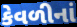
કેવળીનાં